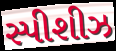
સ્પીશીઝ